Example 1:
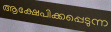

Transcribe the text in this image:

ആക്ഷേപിക്കപ്പെടുന്ന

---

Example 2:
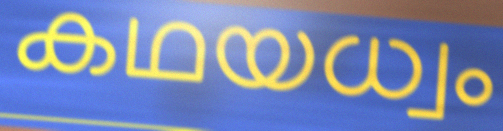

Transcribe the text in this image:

കഥയധ്വം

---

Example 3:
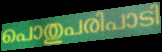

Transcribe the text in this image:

പൊതുപരിപാടി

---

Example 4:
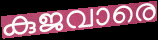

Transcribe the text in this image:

കുജവാരെ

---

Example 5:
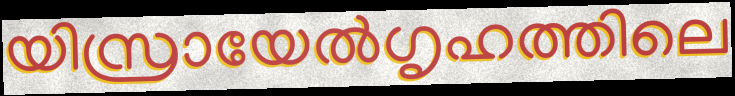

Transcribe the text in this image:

യിസ്രായേൽഗൃഹത്തിലെ